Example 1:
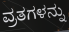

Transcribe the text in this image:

ವ್ರತಗಳನ್ನು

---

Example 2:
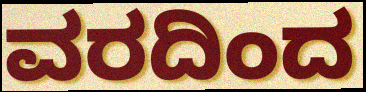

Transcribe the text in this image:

ವರದಿಂದ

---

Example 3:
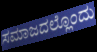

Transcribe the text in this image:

ಸಮಾಜದಲ್ಲೊಂದು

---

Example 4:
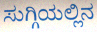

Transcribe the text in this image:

ಸುಗ್ಗಿಯಲ್ಲಿನ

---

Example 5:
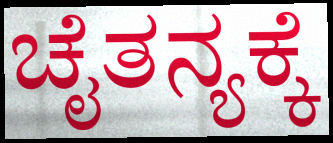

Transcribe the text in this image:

ಚೈತನ್ಯಕ್ಕೆ